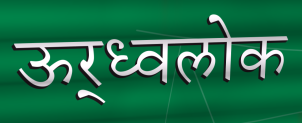
ऊर्ध्वलोक